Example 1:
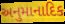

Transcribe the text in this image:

અનુમાનાદિક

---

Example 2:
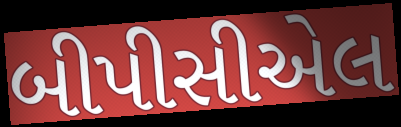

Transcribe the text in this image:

બીપીસીએલ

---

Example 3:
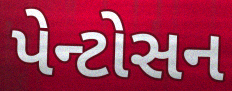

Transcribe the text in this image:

પેન્ટોસન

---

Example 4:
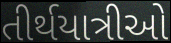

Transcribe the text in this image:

તીર્થયાત્રીઓ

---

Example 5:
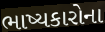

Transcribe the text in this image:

ભાષ્યકારોના